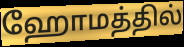
ஹோமத்தில்